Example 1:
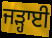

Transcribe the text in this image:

ਜੜ੍ਹਾਈ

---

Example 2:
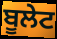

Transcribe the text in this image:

ਬੂਲੇਟ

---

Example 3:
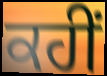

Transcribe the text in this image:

ਕਹੀਂ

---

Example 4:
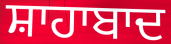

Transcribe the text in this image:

ਸ਼ਾਹਾਬਾਦ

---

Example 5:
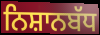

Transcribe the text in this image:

ਨਿਸ਼ਾਨਬੱਧ